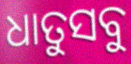
ଧାତୁସବୁ